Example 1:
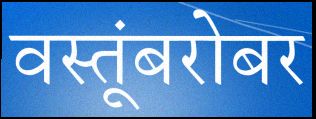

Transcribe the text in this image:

वस्तूंबरोबर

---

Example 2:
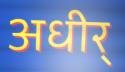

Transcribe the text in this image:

अधीर्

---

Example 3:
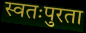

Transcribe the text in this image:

स्वतःपुरता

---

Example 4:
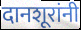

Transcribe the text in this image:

दानशूरांनी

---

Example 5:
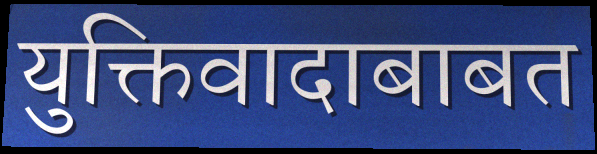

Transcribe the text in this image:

युक्तिवादाबाबत